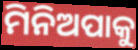
ମିନିଅପାକୁ